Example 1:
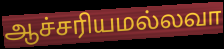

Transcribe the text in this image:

ஆச்சரியமல்லவா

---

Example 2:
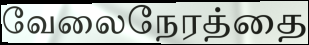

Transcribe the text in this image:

வேலைநேரத்தை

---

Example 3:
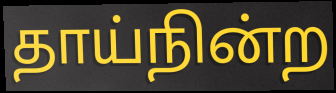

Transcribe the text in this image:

தாய்நின்ற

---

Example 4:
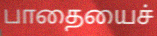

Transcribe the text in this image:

பாதையைச்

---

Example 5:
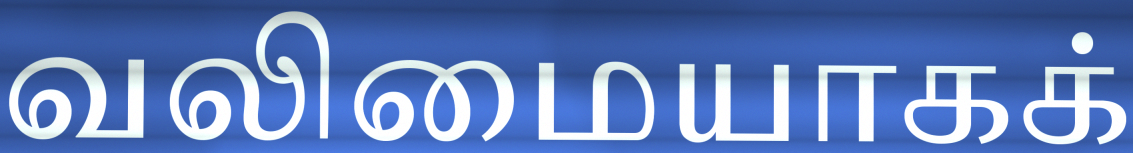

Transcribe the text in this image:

வலிமையாகக்